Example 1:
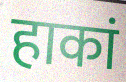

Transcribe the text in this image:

हाकां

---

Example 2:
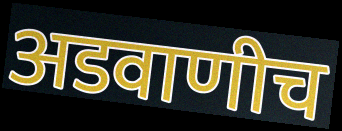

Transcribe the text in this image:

अडवाणीच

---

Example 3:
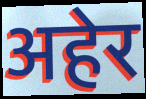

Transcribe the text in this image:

अहेर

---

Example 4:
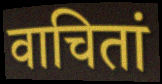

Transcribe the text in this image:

वाचितां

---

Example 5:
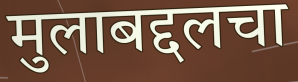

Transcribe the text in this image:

मुलाबद्दलचा